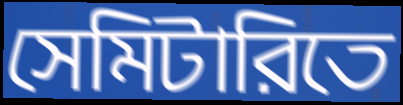
সেমিটারিতে